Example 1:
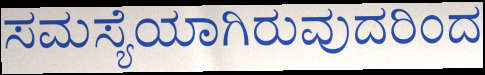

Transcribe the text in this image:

ಸಮಸ್ಯೆಯಾಗಿರುವುದರಿಂದ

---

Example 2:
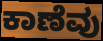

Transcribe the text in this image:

ಕಾಣೆವು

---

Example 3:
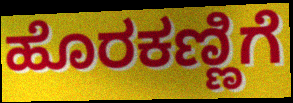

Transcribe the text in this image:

ಹೊರಕಣ್ಣಿಗೆ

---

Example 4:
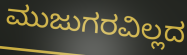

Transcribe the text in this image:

ಮುಜುಗರವಿಲ್ಲದ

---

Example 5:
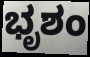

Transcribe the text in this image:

ಭೃಶಂ